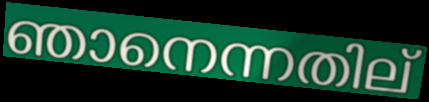
ഞാനെന്നതില്